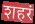
शहरं